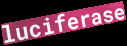
luciferase